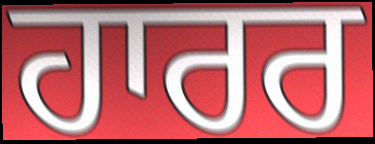
ਹਾਰਰ